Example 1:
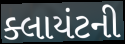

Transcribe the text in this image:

ક્લાયંટની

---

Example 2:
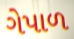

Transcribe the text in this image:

ગેપાળ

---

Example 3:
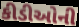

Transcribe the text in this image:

કીડીઓની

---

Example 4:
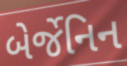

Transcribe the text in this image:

બેર્જેનિન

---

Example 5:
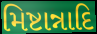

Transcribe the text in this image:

મિષ્ટાન્નાદિ